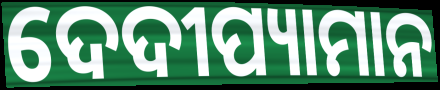
ଦେଦୀପ୍ୟାମାନ